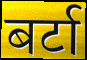
बर्टा